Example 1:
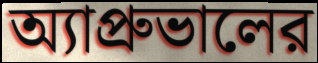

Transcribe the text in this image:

অ্যাপ্রুভালের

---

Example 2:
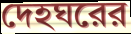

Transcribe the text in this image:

দেহঘরের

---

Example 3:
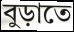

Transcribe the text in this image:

বুড়াতে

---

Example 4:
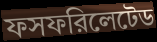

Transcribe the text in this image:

ফসফরিলেটেড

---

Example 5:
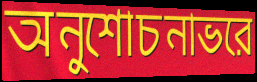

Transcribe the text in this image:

অনুশোচনাভরে